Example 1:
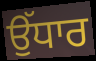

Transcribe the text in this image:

ਉੱਧਾਰ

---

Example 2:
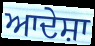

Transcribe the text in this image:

ਆਦੇਸ਼ਾ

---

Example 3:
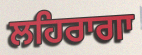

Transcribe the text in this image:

ਲਹਿਰਾਗਾ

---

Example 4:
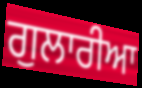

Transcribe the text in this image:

ਗੁਲਾਰੀਆ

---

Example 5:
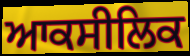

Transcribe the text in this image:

ਆਕਸੀਲਿਕ